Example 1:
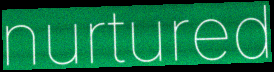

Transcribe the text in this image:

nurtured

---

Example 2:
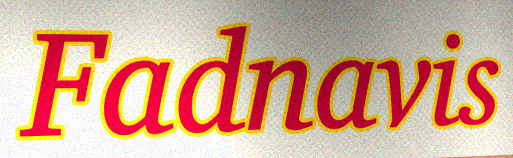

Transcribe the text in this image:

Fadnavis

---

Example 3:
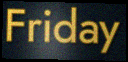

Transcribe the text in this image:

Friday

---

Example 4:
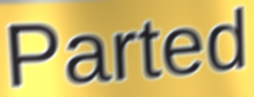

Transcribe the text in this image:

Parted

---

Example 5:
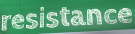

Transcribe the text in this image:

resistance